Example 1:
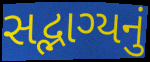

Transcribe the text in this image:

સદ્ભાગ્યનું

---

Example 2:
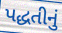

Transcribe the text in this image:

પદ્ધતીનું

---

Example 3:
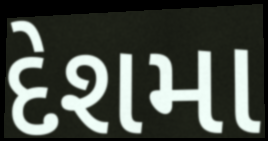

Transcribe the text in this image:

દેશમા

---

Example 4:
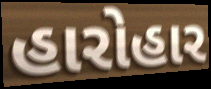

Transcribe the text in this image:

હારોહાર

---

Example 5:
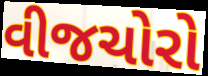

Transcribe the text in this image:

વીજચોરો